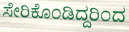
ಸೇರಿಕೊಂಡಿದ್ದರಿಂದ